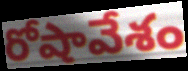
రోషావేశం